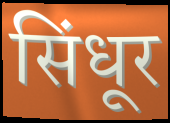
सिंधूर